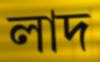
লাদ